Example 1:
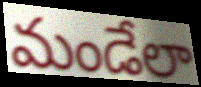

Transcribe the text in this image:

మండేలా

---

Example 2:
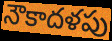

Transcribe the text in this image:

నౌకాదళపు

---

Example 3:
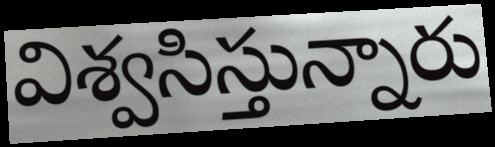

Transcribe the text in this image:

విశ్వసిస్తున్నారు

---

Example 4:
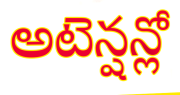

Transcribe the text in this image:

అటెన్షన్లో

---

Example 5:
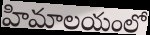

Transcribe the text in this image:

హిమాలయంలో